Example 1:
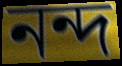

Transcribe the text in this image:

নন্দ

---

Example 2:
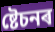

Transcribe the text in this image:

ষ্টেচনৰ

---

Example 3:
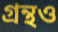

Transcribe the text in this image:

গ্ৰন্থও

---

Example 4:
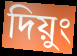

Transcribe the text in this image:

দিয়ুং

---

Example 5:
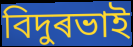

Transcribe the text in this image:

বিদুৰভাই